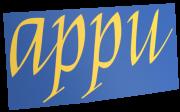
appu